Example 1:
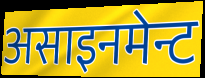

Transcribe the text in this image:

असाइनमेन्ट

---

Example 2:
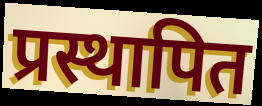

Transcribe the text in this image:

प्रस्थापित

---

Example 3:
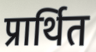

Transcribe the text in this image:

प्रार्थित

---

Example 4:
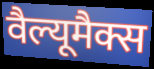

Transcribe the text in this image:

वैल्यूमैक्स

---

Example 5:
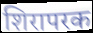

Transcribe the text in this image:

शिरापरक